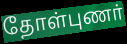
தோள்புணர்